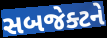
સબજેક્ટને